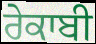
ਰੇਕਾਬੀ